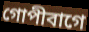
গোপীবাগে